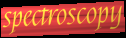
spectroscopy